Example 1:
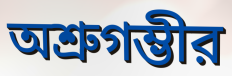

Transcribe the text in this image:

অশ্রুগম্ভীর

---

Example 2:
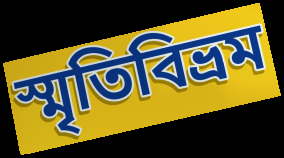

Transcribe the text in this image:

স্মৃতিবিভ্রম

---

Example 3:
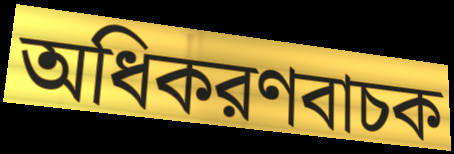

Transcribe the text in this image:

অধিকরণবাচক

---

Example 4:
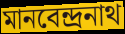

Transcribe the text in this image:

মানবেন্দ্রনাথ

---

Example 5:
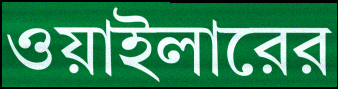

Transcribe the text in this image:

ওয়াইলারের